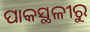
ପାକସ୍ଥଳୀରୁ